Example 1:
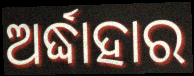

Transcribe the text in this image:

ଅର୍ଦ୍ଧାହାର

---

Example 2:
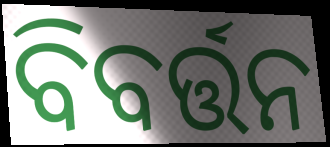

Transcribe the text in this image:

ବିବର୍ତ୍ତନ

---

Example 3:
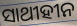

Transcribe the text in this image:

ସାଥୀହୀନ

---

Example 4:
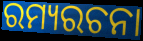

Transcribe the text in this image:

ରମ୍ୟରଚନା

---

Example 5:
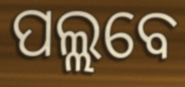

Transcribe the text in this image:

ପଲ୍ଲବେ